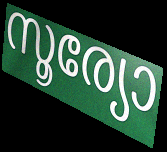
സൂര്യോ